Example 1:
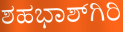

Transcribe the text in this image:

ಶಹಭಾಶ್‌ಗಿರಿ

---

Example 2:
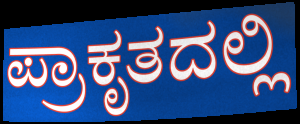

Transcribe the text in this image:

ಪ್ರಾಕೃತದಲ್ಲಿ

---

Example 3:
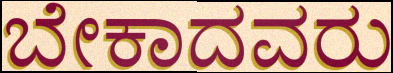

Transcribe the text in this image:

ಬೇಕಾದವರು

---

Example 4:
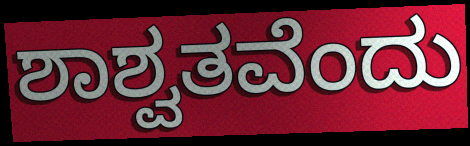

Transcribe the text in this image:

ಶಾಶ್ವತವೆಂದು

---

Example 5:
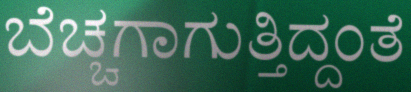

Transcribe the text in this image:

ಬೆಚ್ಚಗಾಗುತ್ತಿದ್ದಂತೆ